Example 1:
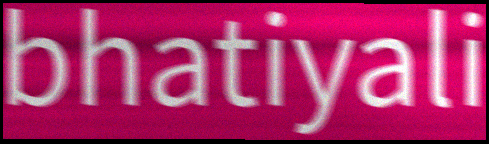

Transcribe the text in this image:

bhatiyali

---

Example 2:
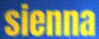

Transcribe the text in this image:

sienna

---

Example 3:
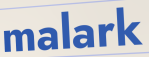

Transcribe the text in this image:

malark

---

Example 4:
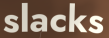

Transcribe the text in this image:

slacks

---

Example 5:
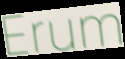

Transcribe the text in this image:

Erum